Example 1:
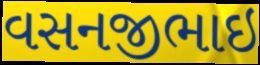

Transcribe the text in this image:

વસનજીભાઇ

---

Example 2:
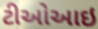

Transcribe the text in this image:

ટીઓઆઇ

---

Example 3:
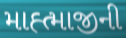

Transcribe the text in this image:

માહ્ત્માજીની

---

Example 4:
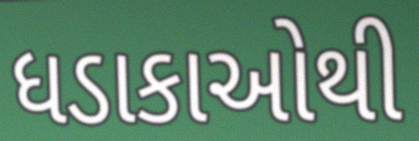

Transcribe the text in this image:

ધડાકાઓથી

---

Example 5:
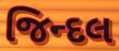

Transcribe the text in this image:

જિન્દલ